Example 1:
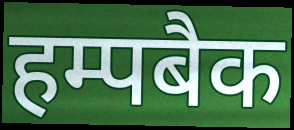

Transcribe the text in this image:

हम्पबैक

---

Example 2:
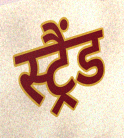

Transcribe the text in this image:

स्ट्रैंड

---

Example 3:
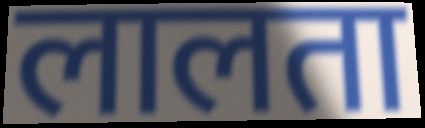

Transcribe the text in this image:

लालता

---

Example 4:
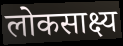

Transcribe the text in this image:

लोकसाक्ष्य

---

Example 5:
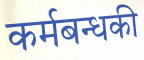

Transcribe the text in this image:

कर्मबन्धकी